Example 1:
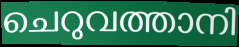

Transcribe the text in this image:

ചെറുവത്താനി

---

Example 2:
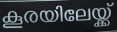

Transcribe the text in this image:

കൂരയിലേയ്ക്ക്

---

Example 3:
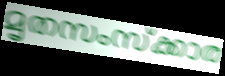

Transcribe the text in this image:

മൃതസംസ്ക്കാര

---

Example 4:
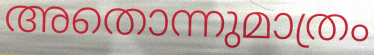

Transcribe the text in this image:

അതൊന്നുമാത്രം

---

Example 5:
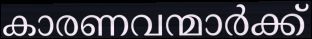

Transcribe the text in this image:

കാരണവന്മാർക്ക്